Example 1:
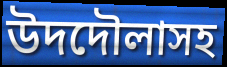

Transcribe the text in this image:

উদদৌলাসহ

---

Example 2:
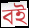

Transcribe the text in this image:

বই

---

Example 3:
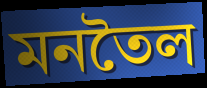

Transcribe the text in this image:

মনতৈল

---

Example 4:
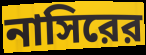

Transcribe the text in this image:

নাসিরের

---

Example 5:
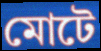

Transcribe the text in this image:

মোটে